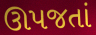
ઊપજતાં